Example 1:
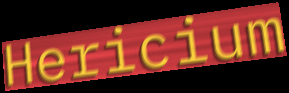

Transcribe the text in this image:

Hericium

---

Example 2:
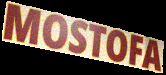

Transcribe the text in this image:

MOSTOFA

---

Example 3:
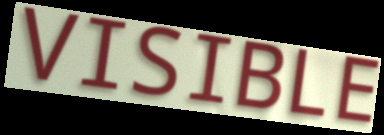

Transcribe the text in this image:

VISIBLE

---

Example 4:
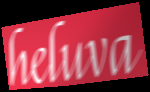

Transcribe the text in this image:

heluva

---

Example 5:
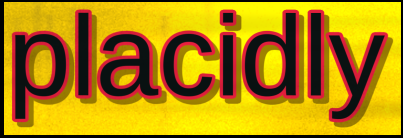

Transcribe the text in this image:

placidly